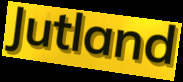
Jutland